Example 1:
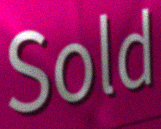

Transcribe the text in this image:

Sold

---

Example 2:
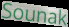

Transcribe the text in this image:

Sounak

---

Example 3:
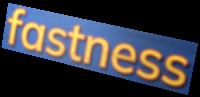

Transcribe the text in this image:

fastness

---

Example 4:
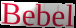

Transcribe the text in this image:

Bebel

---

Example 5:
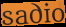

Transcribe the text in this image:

sadio